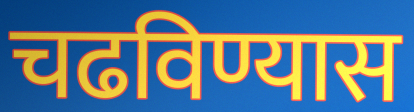
चढविण्यास